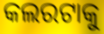
କଲରଟାକୁ